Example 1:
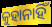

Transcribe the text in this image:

କୁହାନାହିଁ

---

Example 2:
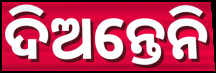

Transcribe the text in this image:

ଦିଅନ୍ତେନି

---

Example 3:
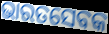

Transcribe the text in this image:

ଭାରତସେବକ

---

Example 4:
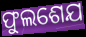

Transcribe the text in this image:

ଫୁଲଶେଯ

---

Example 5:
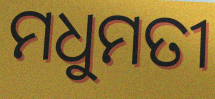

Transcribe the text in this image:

ମଧୁମତୀ